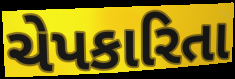
ચેપકારિતા